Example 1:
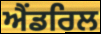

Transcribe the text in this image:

ਐਂਡਰਿਲ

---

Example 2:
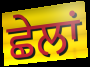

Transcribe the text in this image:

ਛੇਲਾਂ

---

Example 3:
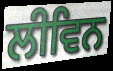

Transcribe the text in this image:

ਲੀਵਿਨ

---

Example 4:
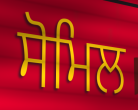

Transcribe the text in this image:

ਸੋਮਿਲ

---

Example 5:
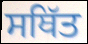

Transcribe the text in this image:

ਸਥਿੱਤ